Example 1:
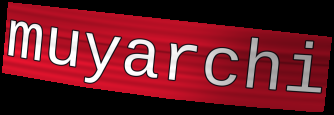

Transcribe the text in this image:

muyarchi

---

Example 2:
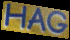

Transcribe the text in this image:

HAG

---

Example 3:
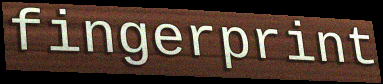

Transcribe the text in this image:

fingerprint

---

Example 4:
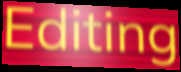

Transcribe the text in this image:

Editing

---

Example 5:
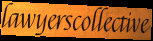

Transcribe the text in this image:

lawyerscollective